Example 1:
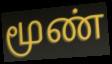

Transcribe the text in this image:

மூண்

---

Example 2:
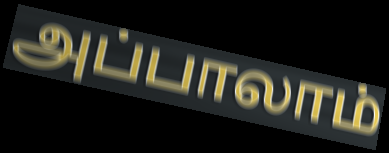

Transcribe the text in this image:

அப்பாலாம்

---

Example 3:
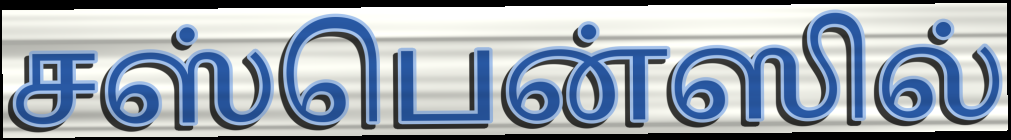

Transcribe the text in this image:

சஸ்பென்ஸில்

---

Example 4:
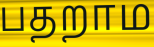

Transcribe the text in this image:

பதறாம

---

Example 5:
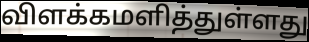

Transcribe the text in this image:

விளக்கமளித்துள்ளது